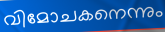
വിമോചകനെന്നും